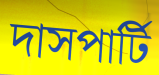
দাসপার্টি